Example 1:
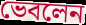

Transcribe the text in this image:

ভেবলেন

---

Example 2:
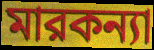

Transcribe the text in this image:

মারকন্যা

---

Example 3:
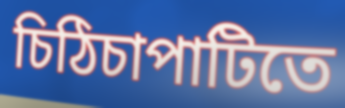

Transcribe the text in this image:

চিঠিচাপাটিতে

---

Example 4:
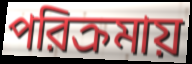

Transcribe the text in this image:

পরিক্রমায়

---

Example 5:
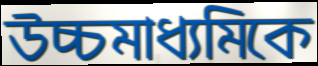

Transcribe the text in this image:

উচ্চমাধ্যমিকে